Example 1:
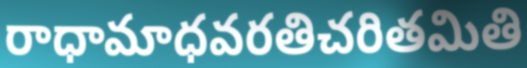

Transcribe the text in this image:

రాధామాధవరతిచరితమితి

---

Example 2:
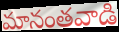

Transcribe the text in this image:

మానంతవాడి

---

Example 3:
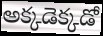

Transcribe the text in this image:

అక్కడెక్కడో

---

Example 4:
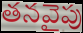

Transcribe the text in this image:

తనవైపు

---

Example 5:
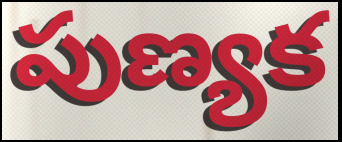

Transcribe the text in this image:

పుణ్యక